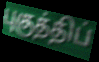
புகுத்திப்